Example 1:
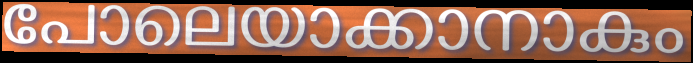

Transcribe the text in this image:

പോലെയാക്കാനാകും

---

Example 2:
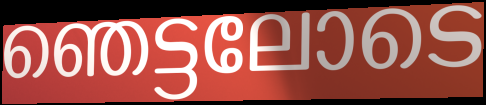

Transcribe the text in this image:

ഞെട്ടലോടെ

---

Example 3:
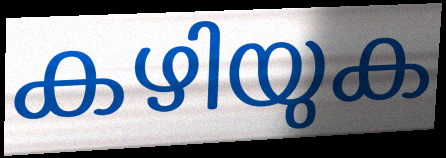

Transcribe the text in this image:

കഴിയുക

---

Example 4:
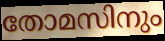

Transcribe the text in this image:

തോമസിനും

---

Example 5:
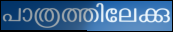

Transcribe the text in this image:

പാത്രത്തിലേക്കു